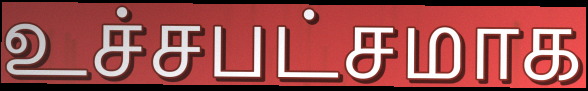
உச்சபட்சமாக